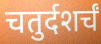
चतुर्दशर्चं